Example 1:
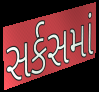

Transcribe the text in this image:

સર્કસમાં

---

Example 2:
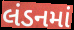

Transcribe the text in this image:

લંડનમાં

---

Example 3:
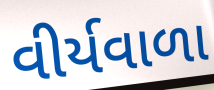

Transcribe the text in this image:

વીર્યવાળા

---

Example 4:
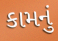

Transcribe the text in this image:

કામનું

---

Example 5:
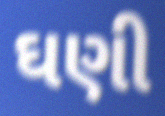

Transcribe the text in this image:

ઘણી